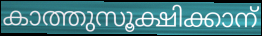
കാത്തുസൂക്ഷിക്കാന്